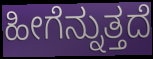
ಹೀಗೆನ್ನುತ್ತದೆ